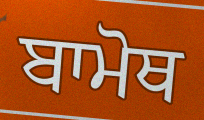
ਬਾਮੋਥ